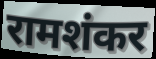
रामशंकर